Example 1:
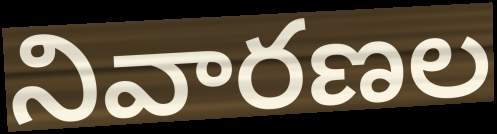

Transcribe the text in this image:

నివారణల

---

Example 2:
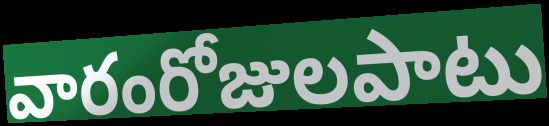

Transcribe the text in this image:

వారంరోజులపాటు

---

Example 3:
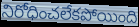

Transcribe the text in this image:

నిరోధించలేకపోయింది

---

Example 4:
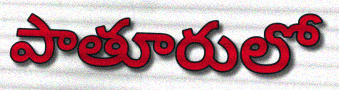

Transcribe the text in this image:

పాతూరులో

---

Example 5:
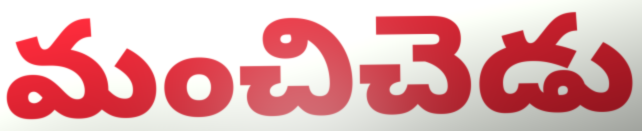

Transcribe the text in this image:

మంచిచెడు